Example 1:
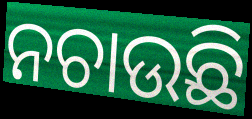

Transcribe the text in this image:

ନଚାଉଛି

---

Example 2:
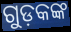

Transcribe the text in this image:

ଗୁଡ଼କଙ୍କ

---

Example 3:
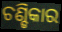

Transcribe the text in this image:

ଚଣ୍ଡିକାର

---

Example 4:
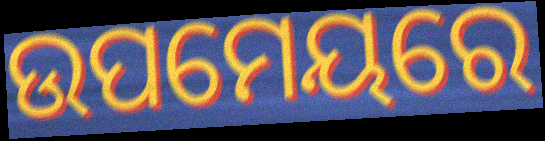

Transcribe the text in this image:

ଉପମେୟରେ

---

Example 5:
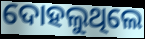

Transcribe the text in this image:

ଦୋହଲୁଥିଲେ